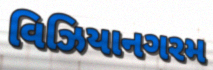
વિઝિયાનગરમ